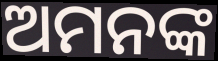
ଅମନଙ୍କ